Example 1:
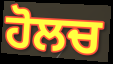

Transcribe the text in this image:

ਹੋਲਚ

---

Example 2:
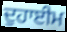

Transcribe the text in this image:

ਦੁਹਾਈਮ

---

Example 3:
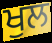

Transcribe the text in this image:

ਖੁਲ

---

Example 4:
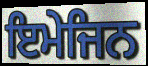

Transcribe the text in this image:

ਇਮੇਜਿਨ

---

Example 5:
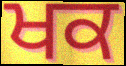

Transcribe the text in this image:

ਖਕ